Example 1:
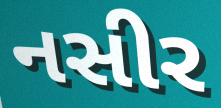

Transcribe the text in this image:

નસીર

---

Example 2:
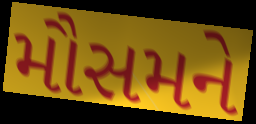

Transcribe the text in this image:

મૌસમને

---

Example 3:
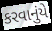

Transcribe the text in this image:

કરવાનુંયે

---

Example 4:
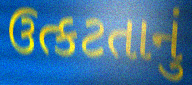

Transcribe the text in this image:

ઉત્કટતાનું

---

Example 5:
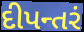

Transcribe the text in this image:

દીપન્તરં